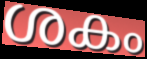
ശകം